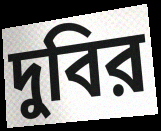
দুবির